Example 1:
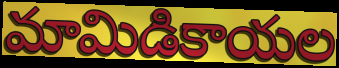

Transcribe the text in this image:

మామిడికాయల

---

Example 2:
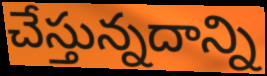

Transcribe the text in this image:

చేస్తున్నదాన్ని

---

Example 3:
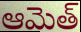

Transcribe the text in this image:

ఆమెత్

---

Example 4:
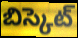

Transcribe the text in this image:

బిస్కెట్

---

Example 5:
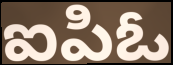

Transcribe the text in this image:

ఐపిఓ